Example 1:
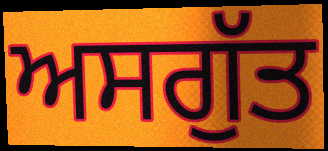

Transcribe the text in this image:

ਅਸਗੁੱਤ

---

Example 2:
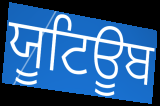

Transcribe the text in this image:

ਯੂਟਿਊਬ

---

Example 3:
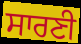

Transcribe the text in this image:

ਸਾਰਣੀ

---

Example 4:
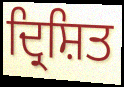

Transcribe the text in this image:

ਦ੍ਰਿਸ਼ਿਤ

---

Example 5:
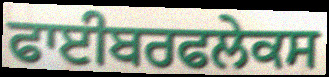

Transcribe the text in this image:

ਫਾਈਬਰਫਲੇਕਸ